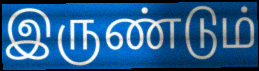
இருண்டும்